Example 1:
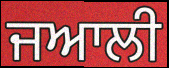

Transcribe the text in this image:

ਜਆਲੀ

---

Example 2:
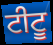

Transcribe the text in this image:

ਟੀਟੂ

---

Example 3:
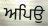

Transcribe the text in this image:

ਅਪਿਉ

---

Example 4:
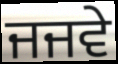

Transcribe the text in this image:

ਜਜਵੇ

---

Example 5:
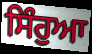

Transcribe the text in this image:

ਸਿੰਹੁਆ